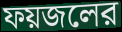
ফয়জলের